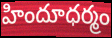
హిందూధర్మం